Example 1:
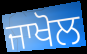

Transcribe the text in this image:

ਜਾਖੋਲ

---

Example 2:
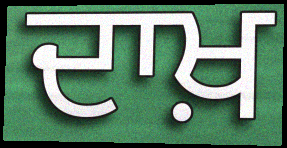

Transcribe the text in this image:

ਦਾਖ਼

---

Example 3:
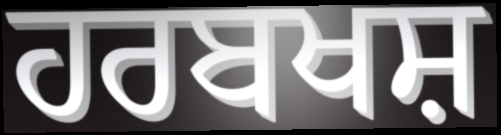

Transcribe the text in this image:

ਹਰਬਖਸ਼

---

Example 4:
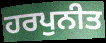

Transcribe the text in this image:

ਹਰਪੁਨੀਤ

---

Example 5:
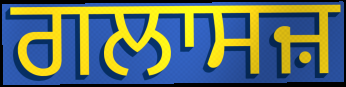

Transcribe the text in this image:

ਗਲਾਸਜ਼